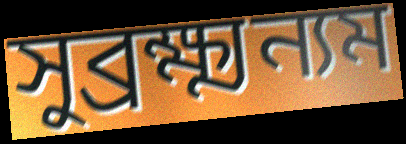
সুব্রক্ষ্মন্যম